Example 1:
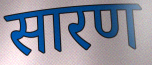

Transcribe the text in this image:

सारण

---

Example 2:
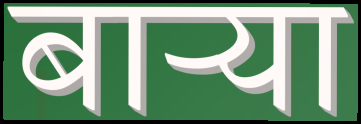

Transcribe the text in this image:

बाऱ्या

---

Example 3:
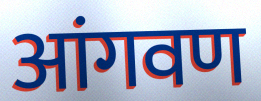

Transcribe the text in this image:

आंगवण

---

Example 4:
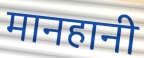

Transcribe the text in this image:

मानहानी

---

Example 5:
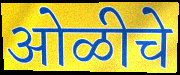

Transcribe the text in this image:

ओळीचे